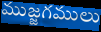
ముజ్జగములు